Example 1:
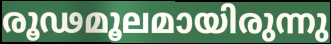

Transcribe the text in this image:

രൂഢമൂലമായിരുന്നു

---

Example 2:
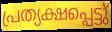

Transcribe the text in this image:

പ്രത്യക്ഷപ്പെട്ടു്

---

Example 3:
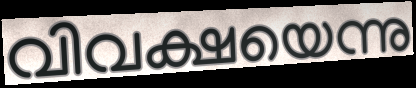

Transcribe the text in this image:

വിവക്ഷയെന്നു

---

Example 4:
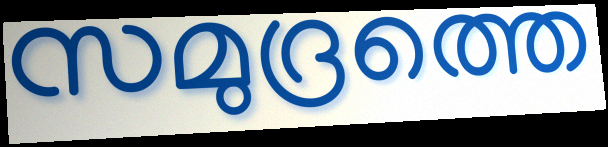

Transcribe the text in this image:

സമുദ്രത്തെ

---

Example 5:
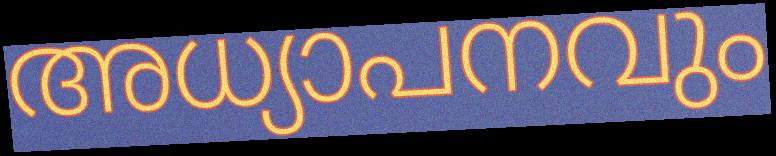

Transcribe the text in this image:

അധ്യാപനവും